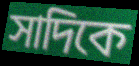
সাদিকে